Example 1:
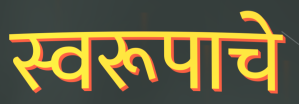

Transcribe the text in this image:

स्वरूपाचे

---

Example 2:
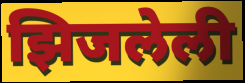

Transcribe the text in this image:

झिजलेली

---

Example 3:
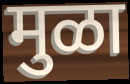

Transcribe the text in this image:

मुळा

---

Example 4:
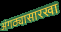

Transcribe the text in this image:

अंगठ्यासारखा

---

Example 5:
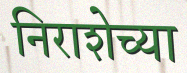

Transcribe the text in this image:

निराशेच्या